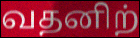
வதனிற்